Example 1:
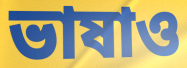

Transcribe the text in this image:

ভাষাও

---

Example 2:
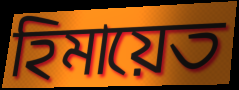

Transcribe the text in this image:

হিমায়েত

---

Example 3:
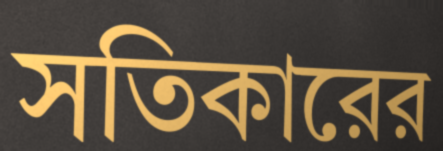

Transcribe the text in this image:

সতিকারের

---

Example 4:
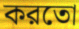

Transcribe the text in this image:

করতো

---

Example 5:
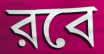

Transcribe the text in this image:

রবে